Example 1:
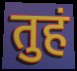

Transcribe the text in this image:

तुहं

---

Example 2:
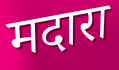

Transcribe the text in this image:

मदारा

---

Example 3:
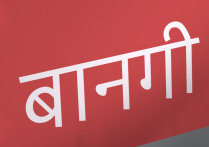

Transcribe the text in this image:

बानगी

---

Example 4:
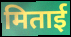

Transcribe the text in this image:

मिताई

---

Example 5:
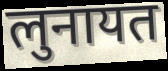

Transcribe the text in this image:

लुनायत